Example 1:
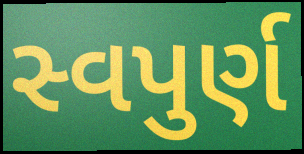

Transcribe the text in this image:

સ્વપુર્ણ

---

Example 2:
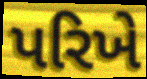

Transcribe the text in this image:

પરિખે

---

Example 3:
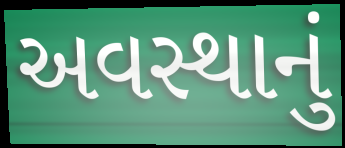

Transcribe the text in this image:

અવસ્થાનું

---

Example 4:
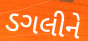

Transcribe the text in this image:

ડગલીને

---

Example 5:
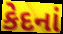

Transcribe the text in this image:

કેદનાં